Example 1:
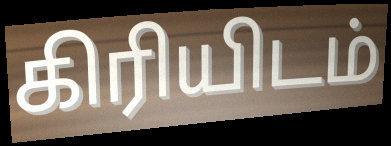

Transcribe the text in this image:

கிரியிடம்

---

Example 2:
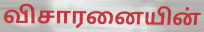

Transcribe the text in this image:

விசாரனையின்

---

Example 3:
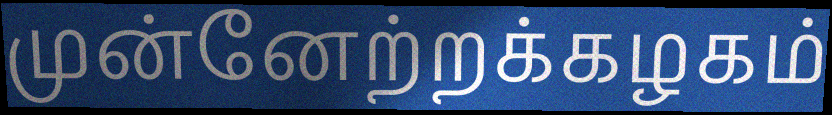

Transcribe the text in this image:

முன்னேற்றக்கழகம்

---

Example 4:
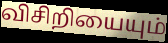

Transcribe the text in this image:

விசிறியையும்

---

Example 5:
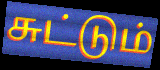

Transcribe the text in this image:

சுட்டும்